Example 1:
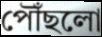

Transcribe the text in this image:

পৌঁছলো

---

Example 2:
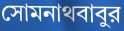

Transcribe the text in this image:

সোমনাথবাবুর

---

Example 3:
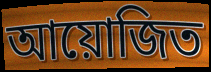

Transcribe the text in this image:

আয়োজিত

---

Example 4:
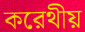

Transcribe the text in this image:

করেথীয়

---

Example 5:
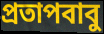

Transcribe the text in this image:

প্রতাপবাবু